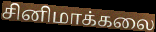
சினிமாக்கலை